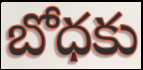
బోధకు